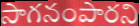
సాగనంపారని